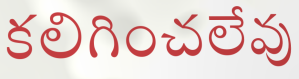
కలిగించలేవు